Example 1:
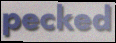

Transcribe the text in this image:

pecked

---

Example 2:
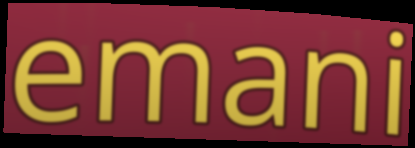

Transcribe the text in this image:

emani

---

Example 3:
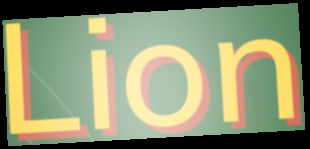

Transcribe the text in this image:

Lion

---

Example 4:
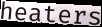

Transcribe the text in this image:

heaters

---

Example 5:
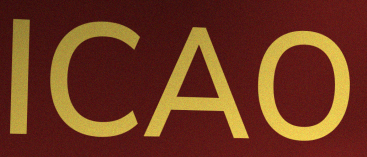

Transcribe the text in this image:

ICAO